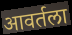
आवर्तला